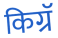
किग्रॅ